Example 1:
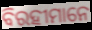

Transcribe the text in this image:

ବିରହୀମାନେ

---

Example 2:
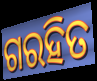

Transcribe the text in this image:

ଗରହିତ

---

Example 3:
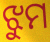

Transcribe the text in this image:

ଝୁମ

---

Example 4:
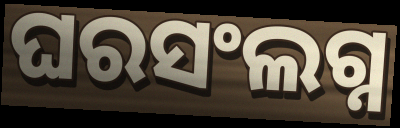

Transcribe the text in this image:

ଘରସଂଲଗ୍ନ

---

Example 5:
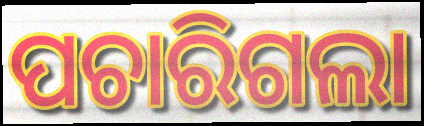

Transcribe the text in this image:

ପଚାରିଗଲା